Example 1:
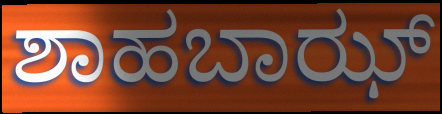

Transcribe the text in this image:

ಶಾಹಬಾಝ್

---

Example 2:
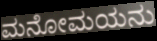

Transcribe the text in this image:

ಮನೋಮಯನು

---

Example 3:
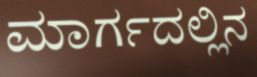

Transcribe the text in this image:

ಮಾರ್ಗದಲ್ಲಿನ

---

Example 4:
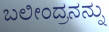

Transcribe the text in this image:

ಬಲೀಂದ್ರನನ್ನು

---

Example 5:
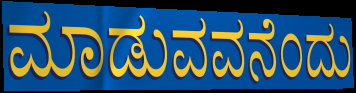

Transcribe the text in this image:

ಮಾಡುವವನೆಂದು